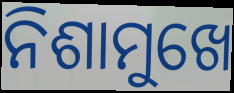
ନିଶାମୁଖେ